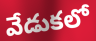
వేడుకలో